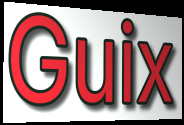
Guix